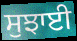
ਸੁਝਾਈ